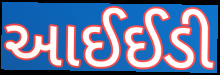
આઈઈડી